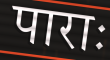
पाराः